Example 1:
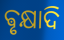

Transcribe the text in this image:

ଵୃକ୍ଷାଦି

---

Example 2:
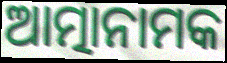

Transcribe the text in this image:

ଆତ୍ମାନାମକ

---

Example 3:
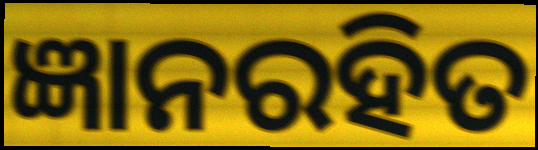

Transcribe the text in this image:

ଜ୍ଞାନରହିତ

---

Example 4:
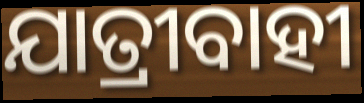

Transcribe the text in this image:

ଯାତ୍ରୀବାହୀ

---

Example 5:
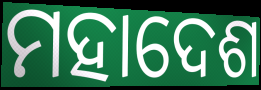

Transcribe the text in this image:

ମହାଦେଶ